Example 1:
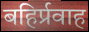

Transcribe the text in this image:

बहिर्प्रवाह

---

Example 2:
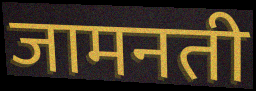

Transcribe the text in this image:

जामनती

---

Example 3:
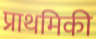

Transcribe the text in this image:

प्राथमिकी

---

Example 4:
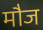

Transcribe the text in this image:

मौज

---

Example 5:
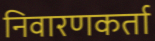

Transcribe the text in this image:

निवारणकर्ता